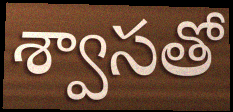
శ్వాసతో